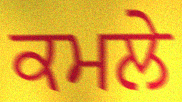
ਕਮਲੇ